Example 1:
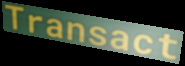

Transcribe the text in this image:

Transact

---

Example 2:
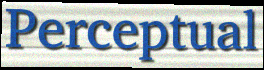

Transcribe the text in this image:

Perceptual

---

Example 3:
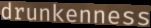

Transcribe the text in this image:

drunkenness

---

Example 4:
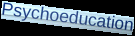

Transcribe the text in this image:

Psychoeducation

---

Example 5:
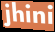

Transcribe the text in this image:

jhini